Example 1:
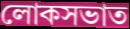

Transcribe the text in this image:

লোকসভাত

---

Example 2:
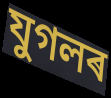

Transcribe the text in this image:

যুগলৰ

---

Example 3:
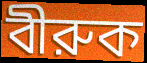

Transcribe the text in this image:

বীৰুক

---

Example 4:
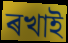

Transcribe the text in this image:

ৰখাই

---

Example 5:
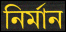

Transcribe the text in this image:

নিৰ্মান